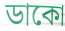
ডাকো